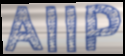
AIIP